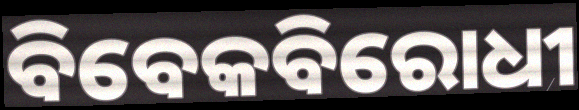
ବିବେକବିରୋଧୀ